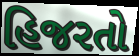
હિજરતો